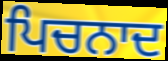
ਪਿਚਨਾਦ